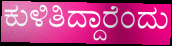
ಕುಳಿತಿದ್ದಾರೆಂದು